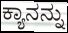
ಕ್ಯಾನನ್ನು